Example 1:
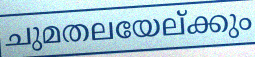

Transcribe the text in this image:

ചുമതലയേല്ക്കും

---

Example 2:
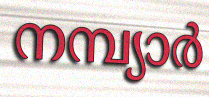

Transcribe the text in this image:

നമ്പ്യാർ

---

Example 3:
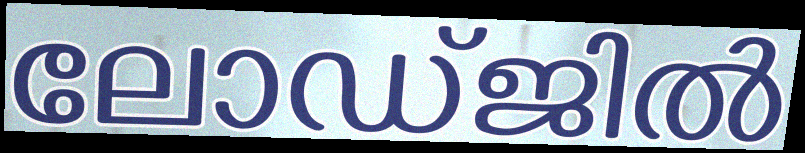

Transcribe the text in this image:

ലോഡ്ജിൽ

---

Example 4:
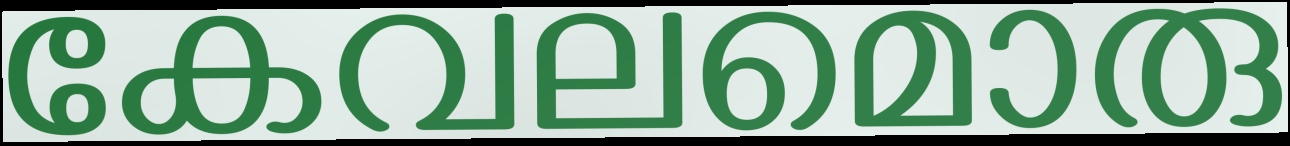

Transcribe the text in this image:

കേവലമൊരു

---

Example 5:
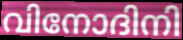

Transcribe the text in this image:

വിനോദിനി